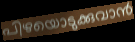
പിഴയൊടുക്കുവാൻ